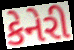
કેનેરી